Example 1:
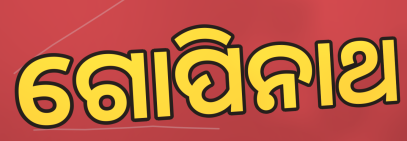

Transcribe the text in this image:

ଗୋପିନାଥ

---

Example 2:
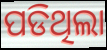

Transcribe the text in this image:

ପଡିଥିଲା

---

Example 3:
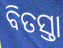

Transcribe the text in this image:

ବିତସ୍ତା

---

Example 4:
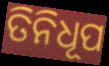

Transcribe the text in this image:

ତିନିଧୂପ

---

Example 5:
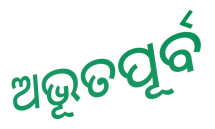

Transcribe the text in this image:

ଅଭୂତପୂର୍ବ